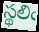
స్థలిఁ